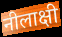
नीलाक्षी